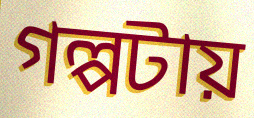
গল্পটায়